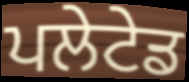
ਪਲੇਟੇਡ